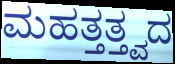
ಮಹತ್ತತ್ತ್ವದ